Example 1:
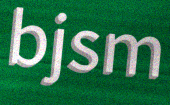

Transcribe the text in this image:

bjsm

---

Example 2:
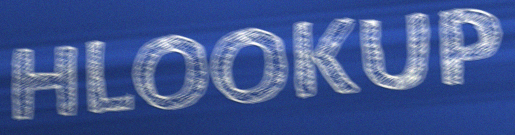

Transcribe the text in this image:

HLOOKUP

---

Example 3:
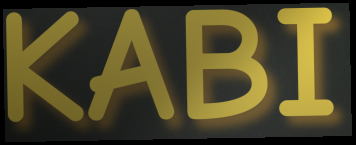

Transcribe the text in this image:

KABI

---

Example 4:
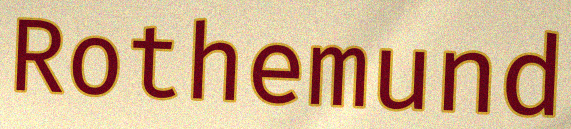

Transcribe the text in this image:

Rothemund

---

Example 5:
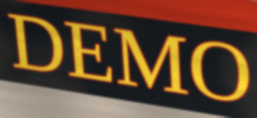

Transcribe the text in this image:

DEMO